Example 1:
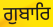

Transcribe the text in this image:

ਗੁਬਾਰਿ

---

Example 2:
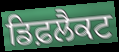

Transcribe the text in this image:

ਡਿਫ਼ਲੈਕਟ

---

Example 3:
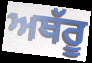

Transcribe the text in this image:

ਅਥੱਰੂ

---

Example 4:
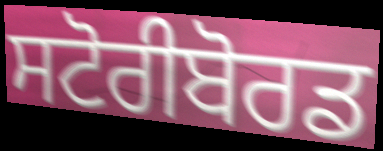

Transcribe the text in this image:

ਸਟੋਰੀਬੋਰਡ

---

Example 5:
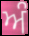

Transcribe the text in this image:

ਅੰ